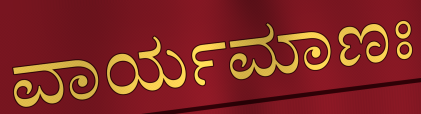
ವಾರ್ಯಮಾಣಃ